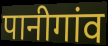
पानीगांव